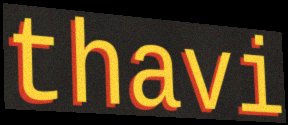
thavi